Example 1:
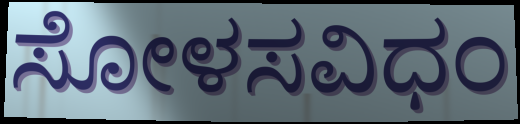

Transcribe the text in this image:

ಸೋಳಸವಿಧಂ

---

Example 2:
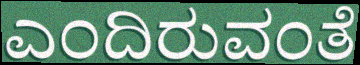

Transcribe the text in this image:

ಎಂದಿರುವಂತೆ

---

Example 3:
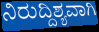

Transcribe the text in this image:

ನಿರುದ್ದಿಶ್ಯವಾಗಿ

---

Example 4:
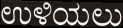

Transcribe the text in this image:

ಉಳಿಯಲು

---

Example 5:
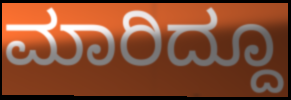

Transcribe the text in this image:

ಮಾರಿದ್ದೂ